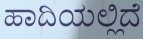
ಹಾದಿಯಲ್ಲಿದೆ